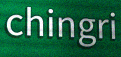
chingri